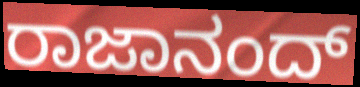
ರಾಜಾನಂದ್